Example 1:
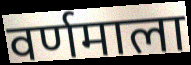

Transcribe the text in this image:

वर्णमाला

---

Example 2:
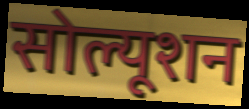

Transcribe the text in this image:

सोल्‍यूशन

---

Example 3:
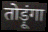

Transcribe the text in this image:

तोड़ूंगा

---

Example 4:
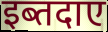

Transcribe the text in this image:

इब्तदाए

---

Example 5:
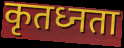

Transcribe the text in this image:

कृतध्नता